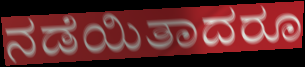
ನಡೆಯಿತಾದರೂ